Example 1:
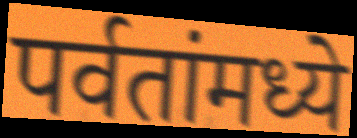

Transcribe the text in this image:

पर्वतांमध्ये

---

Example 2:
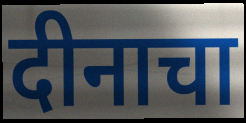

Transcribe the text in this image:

दीनाचा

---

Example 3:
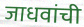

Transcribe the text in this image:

जाधवांची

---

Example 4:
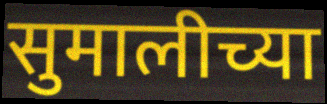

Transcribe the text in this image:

सुमालीच्या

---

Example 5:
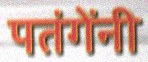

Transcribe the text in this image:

पतंगेंनी